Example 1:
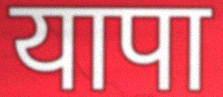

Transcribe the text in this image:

यापा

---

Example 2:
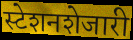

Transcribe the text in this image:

स्टेशनशेजारी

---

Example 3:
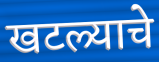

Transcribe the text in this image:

खटल्याचे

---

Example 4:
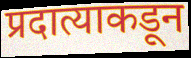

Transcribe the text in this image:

प्रदात्याकडून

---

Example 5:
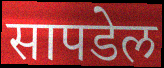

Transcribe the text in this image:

सापडेल